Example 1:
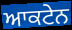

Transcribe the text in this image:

ਆਕਟੇਨ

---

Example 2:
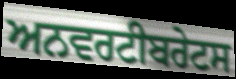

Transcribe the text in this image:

ਅਨਵਰਟੀਬਰੇਟਸ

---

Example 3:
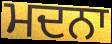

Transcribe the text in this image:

ਮਦਨਾ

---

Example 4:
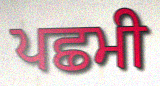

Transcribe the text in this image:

ਪਛਮੀ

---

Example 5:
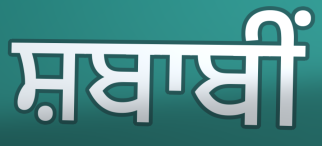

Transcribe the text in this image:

ਸ਼ਬਾਬੀਂ